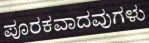
ಪೂರಕವಾದವುಗಳು